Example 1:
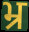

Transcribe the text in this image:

भ्र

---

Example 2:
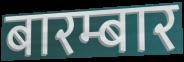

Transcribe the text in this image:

बारम्बार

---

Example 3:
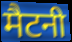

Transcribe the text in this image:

मैटनी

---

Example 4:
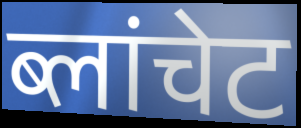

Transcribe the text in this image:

ब्लांचेट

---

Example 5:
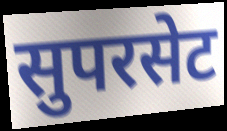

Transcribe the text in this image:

सुपरसेट